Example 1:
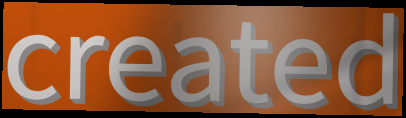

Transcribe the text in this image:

created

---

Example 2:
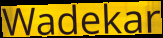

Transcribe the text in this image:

Wadekar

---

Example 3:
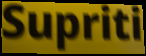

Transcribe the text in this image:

Supriti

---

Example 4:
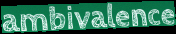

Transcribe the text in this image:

ambivalence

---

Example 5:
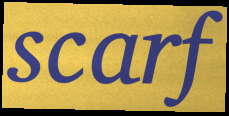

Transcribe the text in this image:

scarf